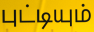
புட்டியும்